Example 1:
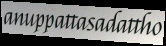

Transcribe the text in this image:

anuppattasadattho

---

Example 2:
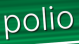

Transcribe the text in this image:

polio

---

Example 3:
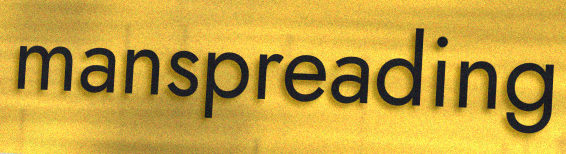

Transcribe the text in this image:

manspreading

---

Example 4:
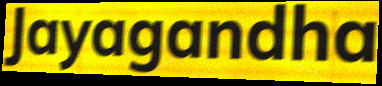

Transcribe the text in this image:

Jayagandha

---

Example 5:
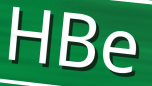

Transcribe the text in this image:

HBe